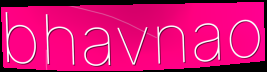
bhavnao